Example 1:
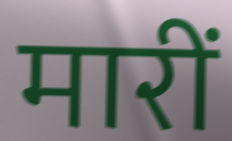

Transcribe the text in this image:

मारीं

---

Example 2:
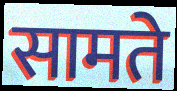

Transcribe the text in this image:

सामते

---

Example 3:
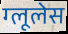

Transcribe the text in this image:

ग्लूलेस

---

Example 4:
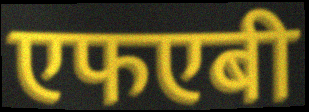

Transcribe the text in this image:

एफएबी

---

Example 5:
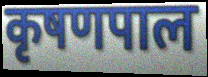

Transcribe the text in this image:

कृषणपाल